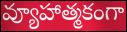
వ్యూహాత్మకంగా